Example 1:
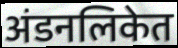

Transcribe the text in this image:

अंडनलिकेत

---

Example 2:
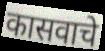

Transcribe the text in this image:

कासवाचे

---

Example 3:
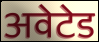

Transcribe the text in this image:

अवेटेड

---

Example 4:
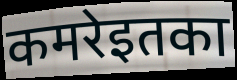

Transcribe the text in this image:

कमरेइतका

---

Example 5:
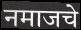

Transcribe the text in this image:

नमाजचे